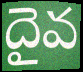
దైవ